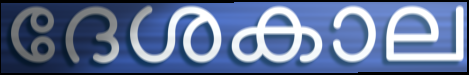
ദേശകാല